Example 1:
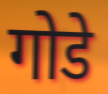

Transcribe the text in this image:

गोडे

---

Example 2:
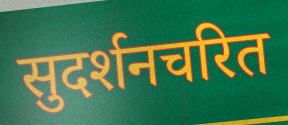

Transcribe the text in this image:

सुदर्शनचरित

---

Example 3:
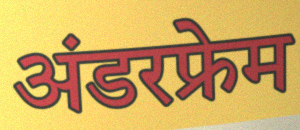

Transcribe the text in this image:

अंडरफ्रेम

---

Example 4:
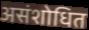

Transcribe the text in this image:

असंशोधित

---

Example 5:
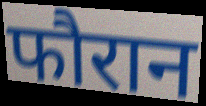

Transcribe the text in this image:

फौरान